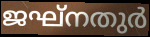
ജഘ്നതുർ